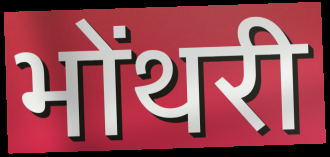
भोंथरी